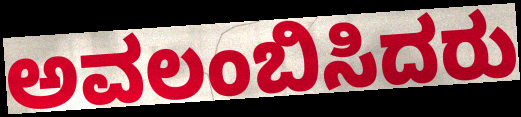
ಅವಲಂಬಿಸಿದರು